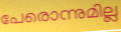
പേരൊന്നുമില്ല